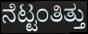
ನೆಟ್ಟಂತಿತ್ತು